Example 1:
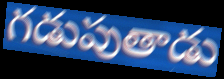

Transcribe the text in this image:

గడుపుతాడు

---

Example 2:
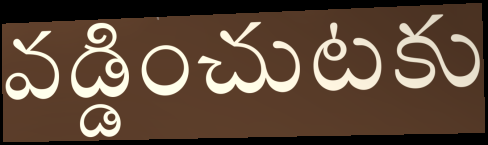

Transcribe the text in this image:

వడ్డించుటకు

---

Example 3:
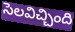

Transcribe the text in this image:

సెలవిచ్చింది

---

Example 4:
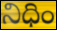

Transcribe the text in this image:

నిధిం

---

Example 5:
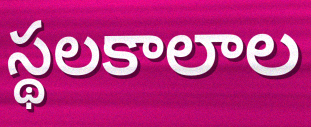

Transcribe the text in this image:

స్థలకాలాల